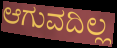
ಆಗುವದಿಲ್ಲ